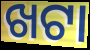
ଖଟା